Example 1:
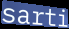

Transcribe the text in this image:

sarti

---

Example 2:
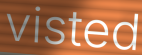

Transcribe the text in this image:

visted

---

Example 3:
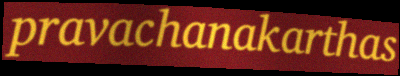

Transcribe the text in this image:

pravachanakarthas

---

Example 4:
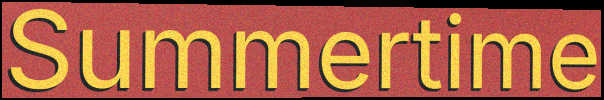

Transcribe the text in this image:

Summertime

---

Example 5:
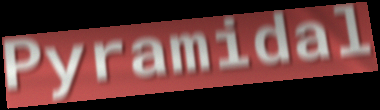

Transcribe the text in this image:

Pyramidal